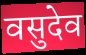
वसुदेव